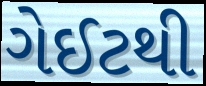
ગેઈટથી